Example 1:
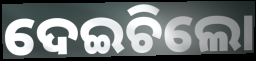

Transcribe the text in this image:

ଦେଇଚିଲୋ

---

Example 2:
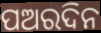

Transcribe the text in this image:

ପଅରଦିନ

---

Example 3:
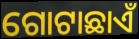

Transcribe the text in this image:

ଗୋଟାଛାଏଁ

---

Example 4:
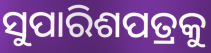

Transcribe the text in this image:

ସୁପାରିଶପତ୍ରକୁ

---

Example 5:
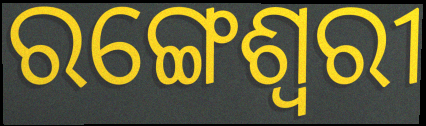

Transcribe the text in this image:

ରଙ୍ଗେଶ୍ୱରୀ